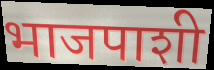
भाजपाशी